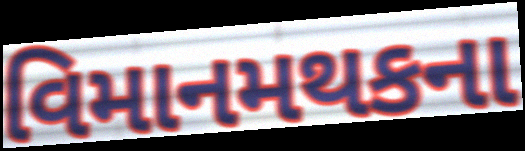
વિમાનમથકના